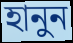
হানুন